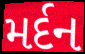
મર્દન